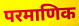
परमाणिक